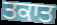
ਤਕਾਤ